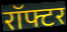
रॉफ्टर